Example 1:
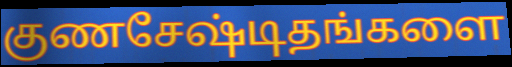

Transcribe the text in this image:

குணசேஷ்டிதங்களை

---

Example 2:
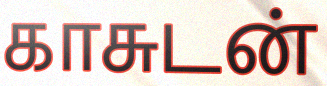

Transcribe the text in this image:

காசுடன்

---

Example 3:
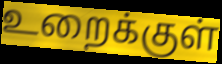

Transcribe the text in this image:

உறைக்குள்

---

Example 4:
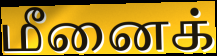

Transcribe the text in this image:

மீனைக்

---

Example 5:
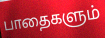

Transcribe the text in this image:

பாதைகளும்